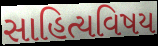
સાહિત્યવિષય